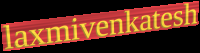
laxmivenkatesh